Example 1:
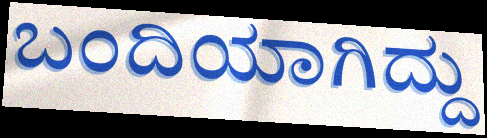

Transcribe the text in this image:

ಬಂದಿಯಾಗಿದ್ದು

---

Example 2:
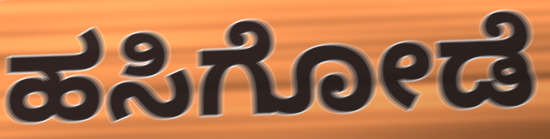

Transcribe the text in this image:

ಹಸಿಗೋಡೆ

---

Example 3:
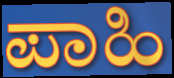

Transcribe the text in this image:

ಪಾಹಿ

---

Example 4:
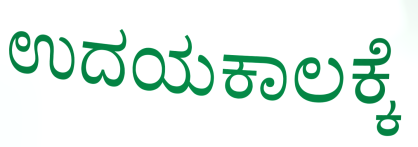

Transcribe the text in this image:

ಉದಯಕಾಲಕ್ಕೆ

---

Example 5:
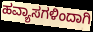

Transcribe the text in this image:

ಹವ್ಯಾಸಗಳಿಂದಾಗಿ